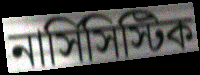
নার্সিসিস্টিক